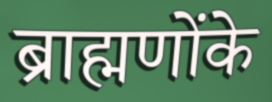
ब्राह्मणोंके